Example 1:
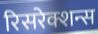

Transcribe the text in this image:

रिसरेक्शन्स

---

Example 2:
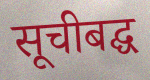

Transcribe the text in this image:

सूचीबद्घ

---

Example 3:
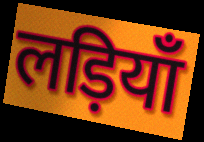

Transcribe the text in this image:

लड़ियाँ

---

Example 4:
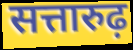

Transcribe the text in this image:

सत्तारुढ़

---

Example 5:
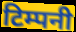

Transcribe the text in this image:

टिम्पनी